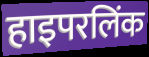
हाइपरलिंक